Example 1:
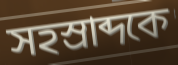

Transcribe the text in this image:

সহস্রাব্দকে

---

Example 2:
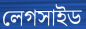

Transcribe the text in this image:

লেগসাইড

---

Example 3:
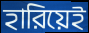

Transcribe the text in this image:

হারিয়েই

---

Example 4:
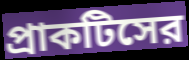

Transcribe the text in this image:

প্রাকটিসের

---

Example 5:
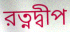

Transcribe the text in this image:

রত্নদ্বীপ